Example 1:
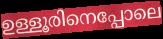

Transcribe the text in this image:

ഉള്ളൂരിനെപ്പോലെ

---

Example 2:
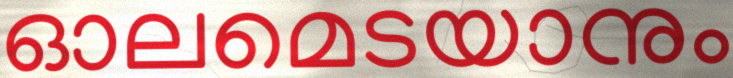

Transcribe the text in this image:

ഓലമെടയാനും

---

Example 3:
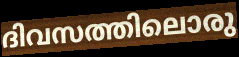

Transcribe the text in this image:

ദിവസത്തിലൊരു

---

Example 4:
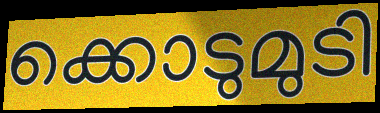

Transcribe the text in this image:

ക്കൊടുമുടി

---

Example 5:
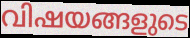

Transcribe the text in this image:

വിഷയങ്ങളുടെ